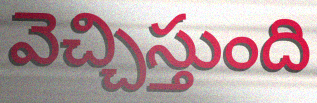
వెచ్చిస్తుంది